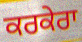
ਕਰਕੇਰਾ